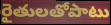
రైతులతోపాటు